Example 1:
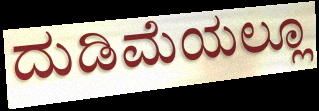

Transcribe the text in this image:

ದುಡಿಮೆಯಲ್ಲೂ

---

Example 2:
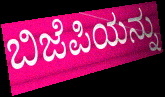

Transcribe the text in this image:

ಬಿಜೆಪಿಯನ್ನು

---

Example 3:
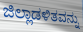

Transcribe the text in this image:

ಜಿಲ್ಲಾಡಳಿತವನ್ನು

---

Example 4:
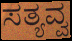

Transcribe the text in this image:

ಸತ್ಯವ್ವ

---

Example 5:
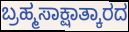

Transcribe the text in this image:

ಬ್ರಹ್ಮಸಾಕ್ಷಾತ್ಕಾರದ